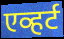
एव्हर्ट